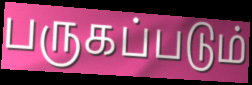
பருகப்படும்